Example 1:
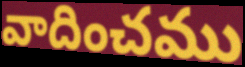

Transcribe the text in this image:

వాదించము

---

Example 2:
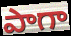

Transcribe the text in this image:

పాగా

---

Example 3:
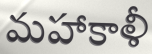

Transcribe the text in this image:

మహాకాళీ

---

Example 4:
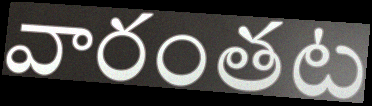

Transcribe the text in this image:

వారంతట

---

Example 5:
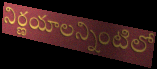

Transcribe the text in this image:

నిర్ణయాలన్నింటిలో